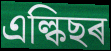
এল্কিছৰ